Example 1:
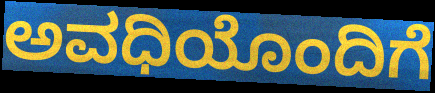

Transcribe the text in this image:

ಅವಧಿಯೊಂದಿಗೆ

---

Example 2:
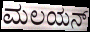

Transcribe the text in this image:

ಮಲಯನ್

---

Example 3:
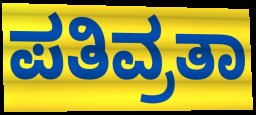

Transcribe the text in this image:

ಪತಿವ್ರತಾ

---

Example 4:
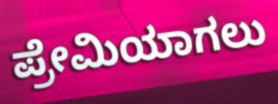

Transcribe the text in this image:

ಪ್ರೇಮಿಯಾಗಲು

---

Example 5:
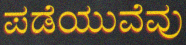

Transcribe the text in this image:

ಪಡೆಯುವೆವು